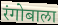
रंगोबाला